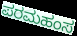
ಪರಮಹಂಸ